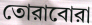
তোরাবোরা